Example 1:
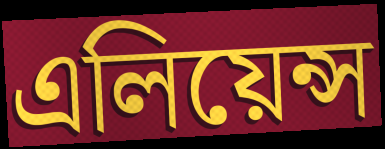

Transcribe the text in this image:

এলিয়েন্স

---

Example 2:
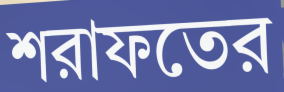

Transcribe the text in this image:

শরাফতের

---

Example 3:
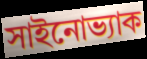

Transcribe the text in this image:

সাইনোভ্যাক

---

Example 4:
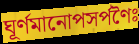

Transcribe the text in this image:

ঘূর্ণমানোপসর্পণৈঃ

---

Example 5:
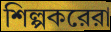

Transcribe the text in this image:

শিল্পকরেরা